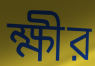
ক্ষীর